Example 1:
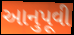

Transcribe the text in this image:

આનુપૂવી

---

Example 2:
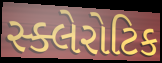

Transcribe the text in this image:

સ્ક્લેરોટિક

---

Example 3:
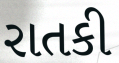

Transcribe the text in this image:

રાતકી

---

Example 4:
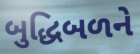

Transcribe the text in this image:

બુદ્ધિબળને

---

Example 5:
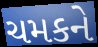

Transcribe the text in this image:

ચમકને